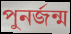
পুনর্জন্ম